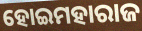
ହୋଇମହାରାଜ